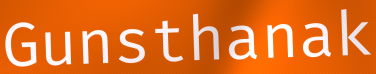
Gunsthanak